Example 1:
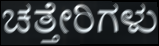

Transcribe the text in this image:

ಚತ್ತೇರಿಗಳು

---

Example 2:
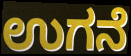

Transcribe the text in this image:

ಉಗನೆ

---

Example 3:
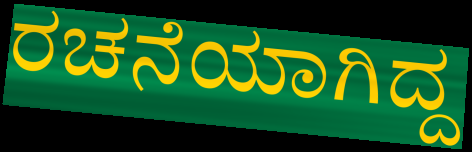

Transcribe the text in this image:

ರಚನೆಯಾಗಿದ್ದ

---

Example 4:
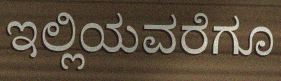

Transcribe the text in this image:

ಇಲ್ಲಿಯವರೆಗೂ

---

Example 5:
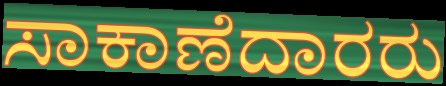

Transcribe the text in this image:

ಸಾಕಾಣೆದಾರರು